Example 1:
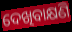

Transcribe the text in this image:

ଦେଖିବାକ୍ଷଣି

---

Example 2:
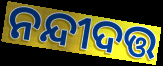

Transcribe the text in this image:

ନନ୍ଦୀଦତ୍ତ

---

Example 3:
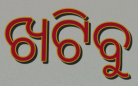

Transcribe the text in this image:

ଖଟିବୁ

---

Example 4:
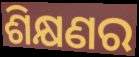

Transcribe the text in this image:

ଶିକ୍ଷଣର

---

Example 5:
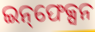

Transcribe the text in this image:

ଇନ୍‌ଫେକ୍ସନ